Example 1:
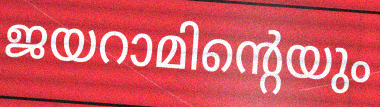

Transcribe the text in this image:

ജയറാമിന്റെയും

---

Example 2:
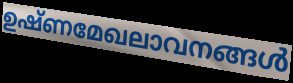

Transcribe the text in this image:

ഉഷ്ണമേഖലാവനങ്ങൾ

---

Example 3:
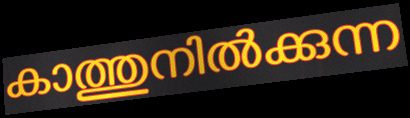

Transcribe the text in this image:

കാത്തുനിൽക്കുന്ന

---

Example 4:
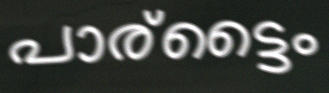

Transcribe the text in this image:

പാര്ട്ടൈം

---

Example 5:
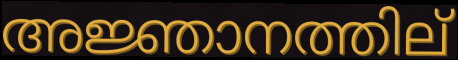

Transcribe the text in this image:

അജ്ഞാനത്തില്